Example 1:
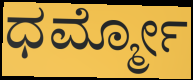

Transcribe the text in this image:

ಧರ್ಮ್ಮೋ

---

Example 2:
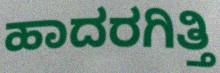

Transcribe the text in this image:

ಹಾದರಗಿತ್ತಿ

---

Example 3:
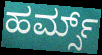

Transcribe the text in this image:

ಹರ್ಮ್ಸ್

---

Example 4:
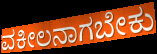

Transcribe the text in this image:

ವಕೀಲನಾಗಬೇಕು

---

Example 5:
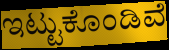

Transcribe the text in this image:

ಇಟ್ಟುಕೊಂಡಿವೆ